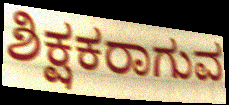
ಶಿಕ್ಷಕರಾಗುವ